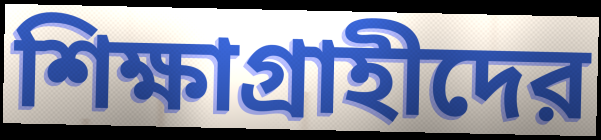
শিক্ষাগ্রাহীদের